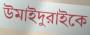
উমাইদুরাইকে